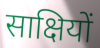
साक्षियों